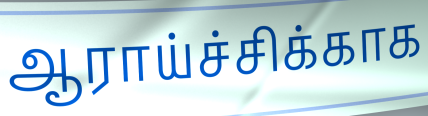
ஆராய்ச்சிக்காக